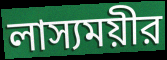
লাস্যময়ীর